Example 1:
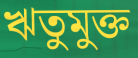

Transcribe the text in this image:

ঋতুমুক্ত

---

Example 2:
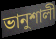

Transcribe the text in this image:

ভানুশালী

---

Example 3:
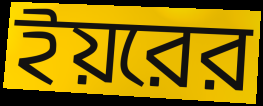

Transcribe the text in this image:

ইয়রের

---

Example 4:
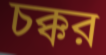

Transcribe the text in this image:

চক্কর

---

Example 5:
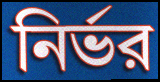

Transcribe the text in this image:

নির্ভর